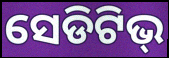
ସେଡିଟିଭ୍